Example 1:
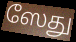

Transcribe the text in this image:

ஸேது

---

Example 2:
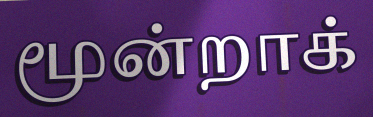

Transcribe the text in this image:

மூன்றாக்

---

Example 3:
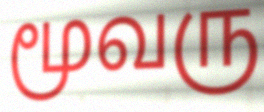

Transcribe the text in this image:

மூவரு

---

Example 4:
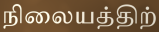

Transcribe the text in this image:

நிலையத்திற்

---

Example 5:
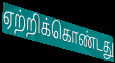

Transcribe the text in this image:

ஏற்றிக்கொண்டது